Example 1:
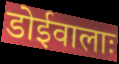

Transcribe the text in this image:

डोईवालाः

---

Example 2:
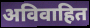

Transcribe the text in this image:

अविवाहित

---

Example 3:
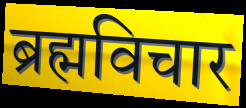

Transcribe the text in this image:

ब्रह्मविचार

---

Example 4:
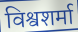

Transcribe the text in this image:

विश्वशर्मा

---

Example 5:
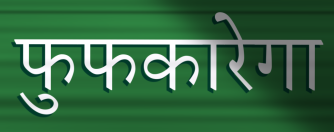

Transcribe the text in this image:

फुफकारेगा